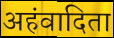
अहंवादिता